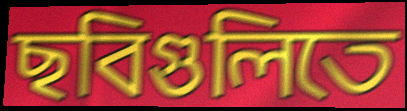
ছবিগুলিতে